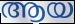
ആയ